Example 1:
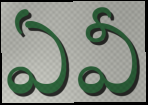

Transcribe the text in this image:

ఏవీ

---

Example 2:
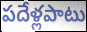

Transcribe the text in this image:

పదేళ్లపాటు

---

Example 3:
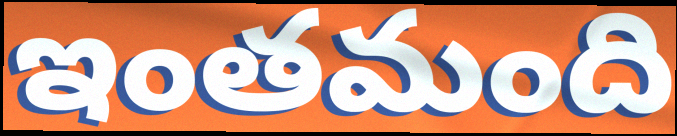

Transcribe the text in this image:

ఇంతమంది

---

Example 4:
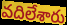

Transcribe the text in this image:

వదిలేశారు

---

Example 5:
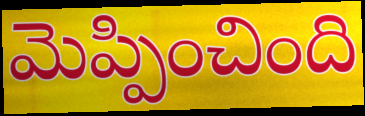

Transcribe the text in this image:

మెప్పించింది